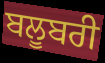
ਬਲੂਬਰੀ